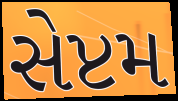
સેપ્ટમ